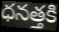
ధనత్తకి